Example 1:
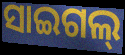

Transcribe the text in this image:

ସାଇଗଲ୍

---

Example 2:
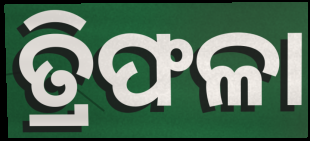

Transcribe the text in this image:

ତ୍ରିଫଳା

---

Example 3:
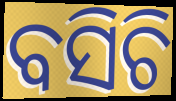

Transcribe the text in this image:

ବସିଚି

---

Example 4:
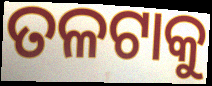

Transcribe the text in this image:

ତଳଟାକୁ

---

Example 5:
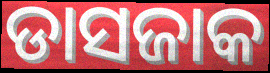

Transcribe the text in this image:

ଡାସଜାକ